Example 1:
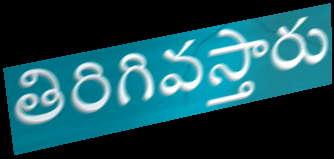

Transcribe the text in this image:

తిరిగివస్తారు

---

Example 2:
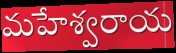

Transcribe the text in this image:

మహేశ్వరాయ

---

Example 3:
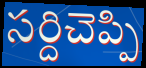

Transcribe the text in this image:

సర్దిచెప్పి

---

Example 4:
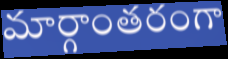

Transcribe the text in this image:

మార్గాంతరంగా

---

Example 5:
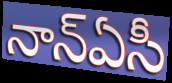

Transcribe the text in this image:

నాన్ఏసీ